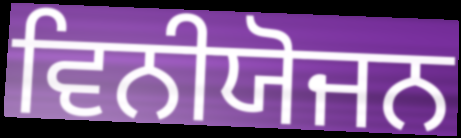
ਵਿਨੀਯੋਜਨ